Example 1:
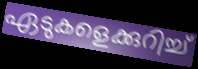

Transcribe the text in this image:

ഏടുകളെക്കുറിച്ച്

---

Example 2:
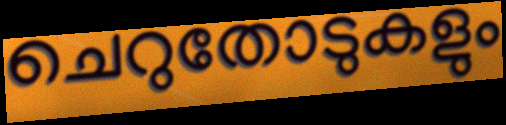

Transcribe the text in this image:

ചെറുതോടുകളും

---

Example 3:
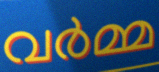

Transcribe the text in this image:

വർമ്മ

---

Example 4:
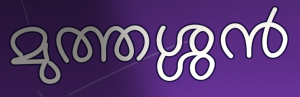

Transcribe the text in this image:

മുത്തശ്ശൻ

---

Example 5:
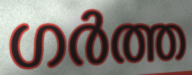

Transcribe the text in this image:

ഗർത്ത